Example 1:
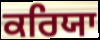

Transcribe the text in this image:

ਕਰਿਯਾ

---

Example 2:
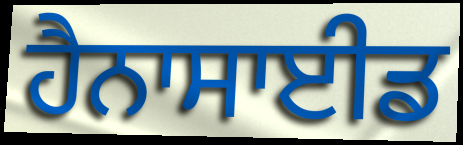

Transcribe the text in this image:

ਹੈਨਾਸਾਈਡ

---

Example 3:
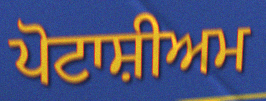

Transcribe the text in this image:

ਪੋਟਾਸ਼ੀਅਮ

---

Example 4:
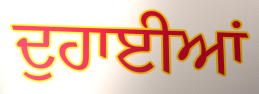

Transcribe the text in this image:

ਦੁਹਾਈਆਂ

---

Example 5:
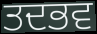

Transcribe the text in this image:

ਤਦਭਵ